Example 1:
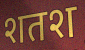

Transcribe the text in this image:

शतश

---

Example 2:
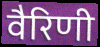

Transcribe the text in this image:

वैरिणी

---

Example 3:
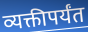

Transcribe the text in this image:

व्यक्तीपर्यंत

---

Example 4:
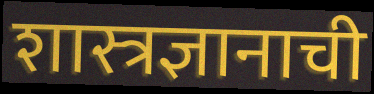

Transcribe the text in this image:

शास्त्रज्ञानाची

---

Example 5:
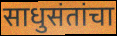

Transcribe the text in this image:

साधुसंतांचा